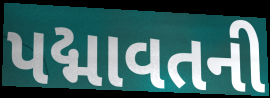
પદ્માવતની